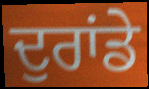
ਦੁਰਾਂਡੇ